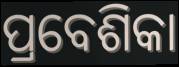
ପ୍ରବେଶିକା